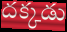
దక్కడు